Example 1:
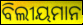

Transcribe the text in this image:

ବିଲୀୟମାନ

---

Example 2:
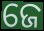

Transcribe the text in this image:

ଜେ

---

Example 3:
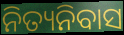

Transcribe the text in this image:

ନିତ୍ୟନିବାସ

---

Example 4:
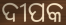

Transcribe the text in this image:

ଦୀପକ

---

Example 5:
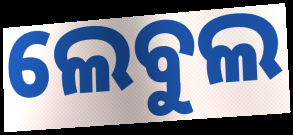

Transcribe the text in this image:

ଲେବୁଲ